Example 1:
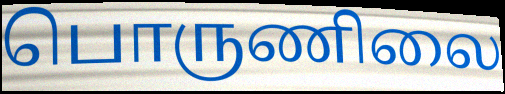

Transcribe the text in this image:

பொருணிலை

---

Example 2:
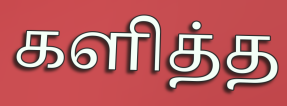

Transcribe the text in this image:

களித்த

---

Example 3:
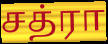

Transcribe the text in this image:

சத்ரா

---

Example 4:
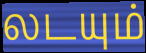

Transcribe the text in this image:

லடயும்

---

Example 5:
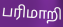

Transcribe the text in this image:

பரிமாறி